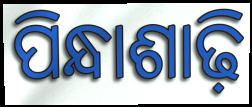
ପିନ୍ଧାଶାଢ଼ି